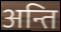
अन्ति